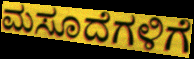
ಮಸೂದೆಗಳಿಗೆ